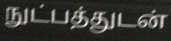
நுட்பத்துடன்